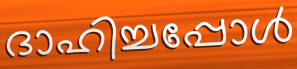
ദാഹിച്ചപ്പോൾ